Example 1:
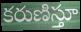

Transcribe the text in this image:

కరుణిస్తూ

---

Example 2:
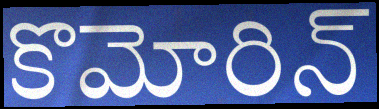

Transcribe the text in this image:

కొమోరిన్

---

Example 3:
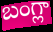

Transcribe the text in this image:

బంగ్లా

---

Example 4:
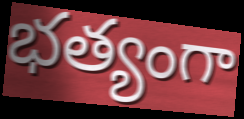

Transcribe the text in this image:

భత్యంగా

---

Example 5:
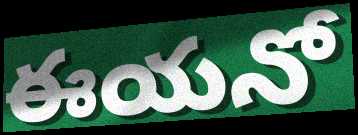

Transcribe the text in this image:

ఈయనో